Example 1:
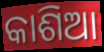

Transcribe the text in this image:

କାଶିଆ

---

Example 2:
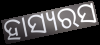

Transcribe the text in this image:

ହାସ୍ୟରସ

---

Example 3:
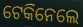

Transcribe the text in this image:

ଟେକିନେଲେ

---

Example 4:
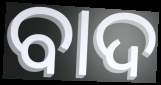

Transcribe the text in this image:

ବାଦ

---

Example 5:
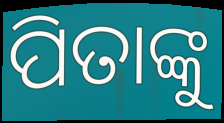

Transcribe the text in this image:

ପିତାଙ୍କୁ